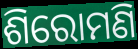
ଶିରୋମଣି